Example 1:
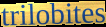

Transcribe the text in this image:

trilobites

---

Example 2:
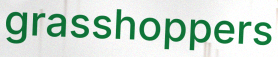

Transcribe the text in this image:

grasshoppers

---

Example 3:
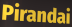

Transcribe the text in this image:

Pirandai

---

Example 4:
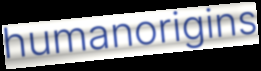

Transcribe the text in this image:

humanorigins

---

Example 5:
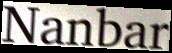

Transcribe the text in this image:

Nanbar